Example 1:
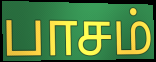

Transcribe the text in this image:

பாசம்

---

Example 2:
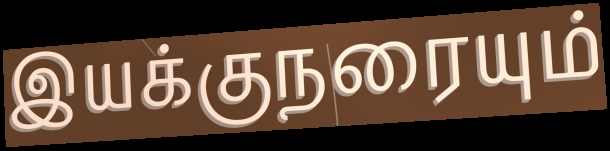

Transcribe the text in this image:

இயக்குநரையும்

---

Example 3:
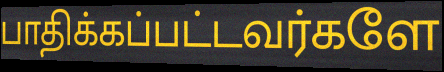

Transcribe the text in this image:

பாதிக்கப்பட்டவர்களே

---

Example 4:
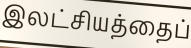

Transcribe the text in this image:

இலட்சியத்தைப்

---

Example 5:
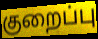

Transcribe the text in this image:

குறைப்பு